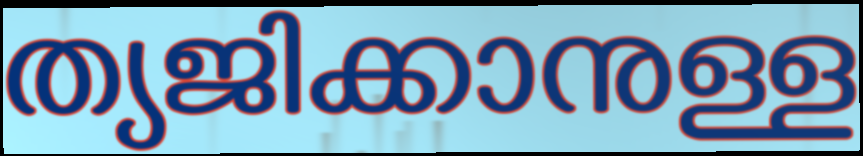
ത്യജിക്കാനുള്ള